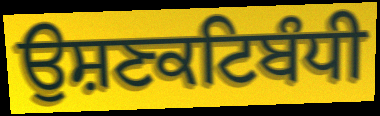
ਉਸ਼ਣਕਟਿਬੰਧੀ